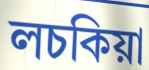
লচকিয়া